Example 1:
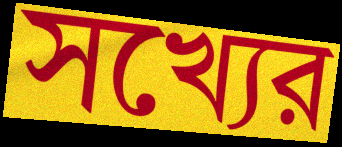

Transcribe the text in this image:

সখ্যের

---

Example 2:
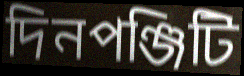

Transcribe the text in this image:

দিনপঞ্জিটি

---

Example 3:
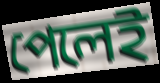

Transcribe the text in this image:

পেলেই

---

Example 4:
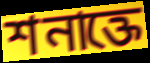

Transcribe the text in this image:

শনাক্তে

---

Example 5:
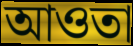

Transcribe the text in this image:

আওতা